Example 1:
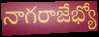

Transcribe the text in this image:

నాగరాజేభ్యో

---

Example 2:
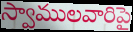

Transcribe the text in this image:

స్వాములవారిపై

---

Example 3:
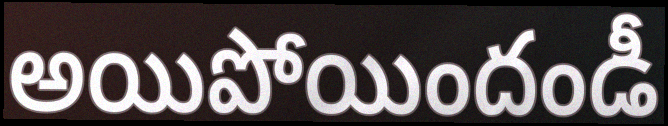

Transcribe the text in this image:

అయిపోయిందండీ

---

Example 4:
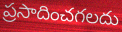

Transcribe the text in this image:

ప్రసాదించగలదు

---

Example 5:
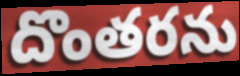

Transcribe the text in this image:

దొంతరను